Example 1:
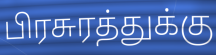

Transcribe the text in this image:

பிரசுரத்துக்கு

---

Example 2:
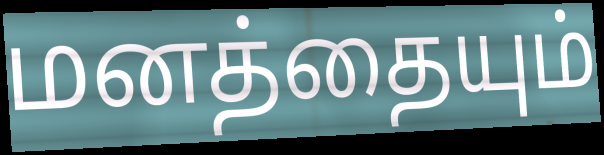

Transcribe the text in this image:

மனத்தையும்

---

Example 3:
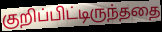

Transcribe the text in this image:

குறிப்பிட்டிருந்ததை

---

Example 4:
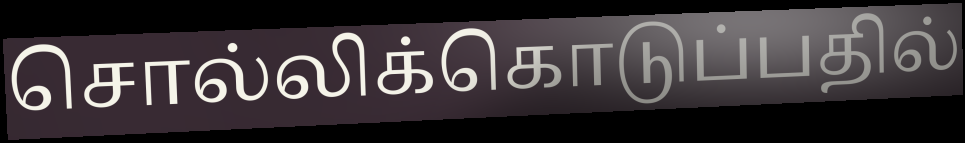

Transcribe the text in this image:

சொல்லிக்கொடுப்பதில்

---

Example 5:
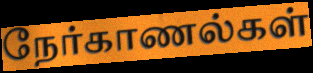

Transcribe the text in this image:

நேர்காணல்கள்